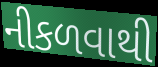
નીકળવાથી